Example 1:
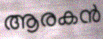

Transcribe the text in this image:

ആരകൻ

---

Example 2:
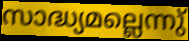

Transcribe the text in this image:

സാദ്ധ്യമല്ലെന്നു്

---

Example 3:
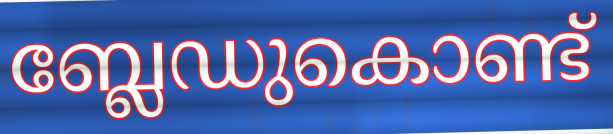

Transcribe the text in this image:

ബ്ലേഡുകൊണ്ട്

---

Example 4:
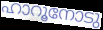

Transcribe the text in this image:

ഹാറൂനോടു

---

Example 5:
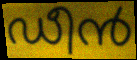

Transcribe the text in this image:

ഡീൻ